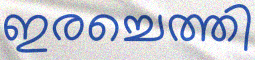
ഇരച്ചെത്തി